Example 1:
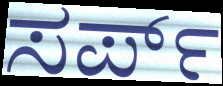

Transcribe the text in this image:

ಸರ್ಪ್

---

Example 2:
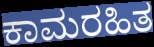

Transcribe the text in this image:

ಕಾಮರಹಿತ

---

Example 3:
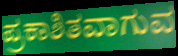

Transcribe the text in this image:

ಪ್ರಕಾಶಿತವಾಗುವ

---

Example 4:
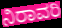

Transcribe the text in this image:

ನಿರಾವರಿ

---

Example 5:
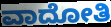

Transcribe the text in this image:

ವಾದೋತಿ